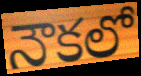
నౌకలో